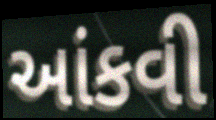
આંકવી